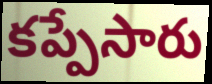
కప్పేసారు